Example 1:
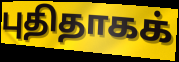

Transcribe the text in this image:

புதிதாகக்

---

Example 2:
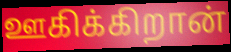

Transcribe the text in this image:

ஊகிக்கிறான்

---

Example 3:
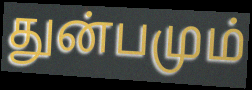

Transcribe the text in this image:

துன்பமும்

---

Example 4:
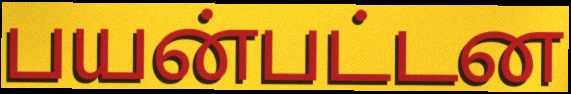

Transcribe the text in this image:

பயன்பட்டன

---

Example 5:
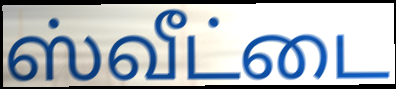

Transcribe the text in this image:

ஸ்வீட்டை